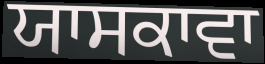
ਯਾਸਕਾਵਾ